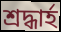
শ্রদ্ধার্হ